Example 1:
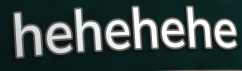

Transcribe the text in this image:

hehehehe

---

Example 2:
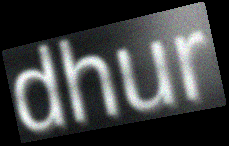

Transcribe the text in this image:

dhur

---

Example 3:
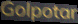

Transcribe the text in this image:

Golpotar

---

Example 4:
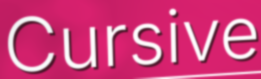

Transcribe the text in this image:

Cursive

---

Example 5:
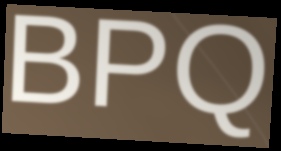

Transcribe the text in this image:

BPQ